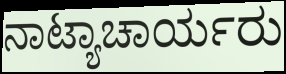
ನಾಟ್ಯಾಚಾರ್ಯರು